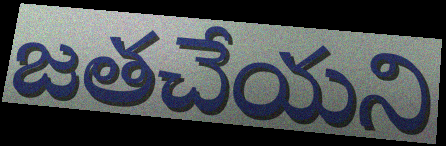
జతచేయని